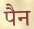
पैन